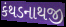
કંથડનાથજી